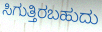
ಸಿಗುತ್ತಿರಬಹುದು